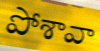
పోశావా